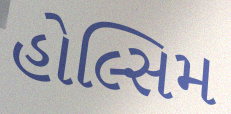
હોલ્સિમ